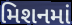
મિશનમાં